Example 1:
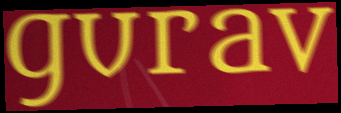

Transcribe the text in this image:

gurav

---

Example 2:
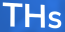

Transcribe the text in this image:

THs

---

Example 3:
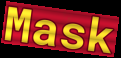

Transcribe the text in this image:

Mask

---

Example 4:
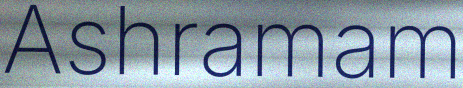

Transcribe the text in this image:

Ashramam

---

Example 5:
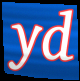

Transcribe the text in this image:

yd